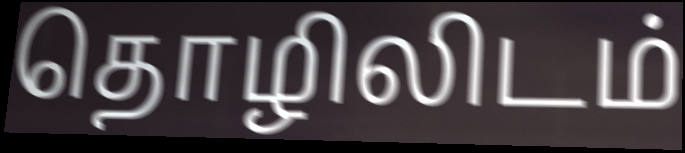
தொழிலிடம்